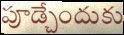
పూడ్చేందుకు